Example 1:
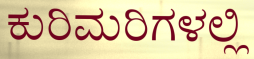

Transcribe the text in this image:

ಕುರಿಮರಿಗಳಲ್ಲಿ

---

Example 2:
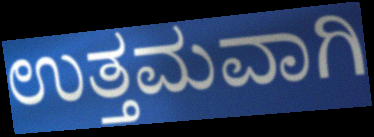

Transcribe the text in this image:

ಉತ್ತಮವಾಗಿ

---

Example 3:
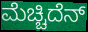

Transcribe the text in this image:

ಮೆಚ್ಚಿದೆನ್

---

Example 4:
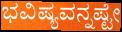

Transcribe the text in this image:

ಭವಿಷ್ಯವನ್ನಷ್ಟೇ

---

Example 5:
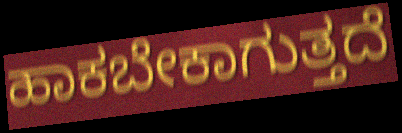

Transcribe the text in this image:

ಹಾಕಬೇಕಾಗುತ್ತದೆ